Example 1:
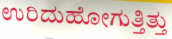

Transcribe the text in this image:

ಉರಿದುಹೋಗುತ್ತಿತ್ತು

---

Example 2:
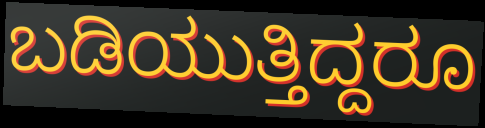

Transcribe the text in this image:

ಬಡಿಯುತ್ತಿದ್ದರೂ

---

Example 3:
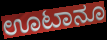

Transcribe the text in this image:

ಊಟಾನೂ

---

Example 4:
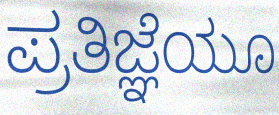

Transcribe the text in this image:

ಪ್ರತಿಜ್ಞೆಯೂ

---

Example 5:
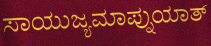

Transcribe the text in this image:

ಸಾಯುಜ್ಯಮಾಪ್ನುಯಾತ್